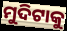
ମୁଦିଟାକୁ